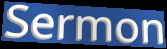
Sermon